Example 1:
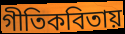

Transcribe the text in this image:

গীতিকবিতায়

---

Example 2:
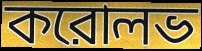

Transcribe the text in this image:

করোলভ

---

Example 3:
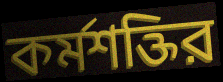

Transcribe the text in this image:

কর্মশক্তির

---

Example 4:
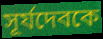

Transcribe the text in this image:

সূর্যদেবকে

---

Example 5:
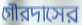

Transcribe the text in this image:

গৌরদাসের